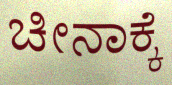
ಚೀನಾಕ್ಕೆ